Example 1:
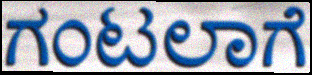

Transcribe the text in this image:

ಗಂಟಲಾಗೆ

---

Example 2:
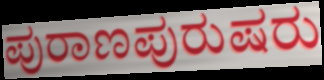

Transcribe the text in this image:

ಪುರಾಣಪುರುಷರು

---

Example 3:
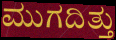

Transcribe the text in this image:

ಮುಗದಿತ್ತು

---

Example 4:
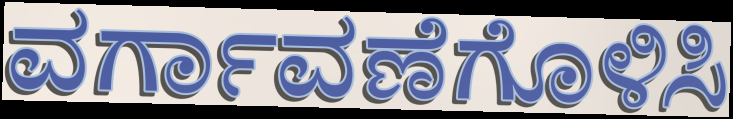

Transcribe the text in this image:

ವರ್ಗಾವಣೆಗೊಳಿಸಿ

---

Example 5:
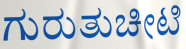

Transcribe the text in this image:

ಗುರುತುಚೀಟಿ